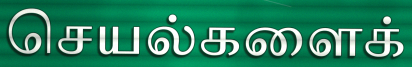
செயல்களைக்